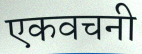
एकवचनी